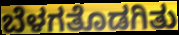
ಬೆಳಗತೊಡಗಿತು